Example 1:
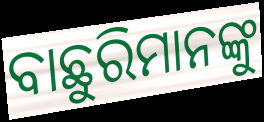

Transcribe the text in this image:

ବାଛୁରିମାନଙ୍କୁ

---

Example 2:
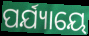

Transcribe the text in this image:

ପର୍ଯ୍ୟାୟେ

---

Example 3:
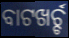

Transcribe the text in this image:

ବାଟଖର୍ଚ୍ଚ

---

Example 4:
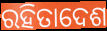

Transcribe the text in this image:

ରହିତାଦେଶ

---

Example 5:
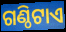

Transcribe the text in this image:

ଗଣ୍ଠିଟାଏ